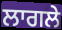
ਲਾਗਲੇ